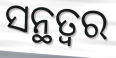
ସନ୍ଥତ୍ବର